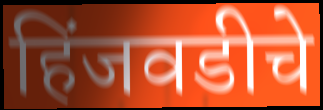
हिंजवडीचे